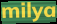
milya